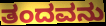
ತಂದವನು